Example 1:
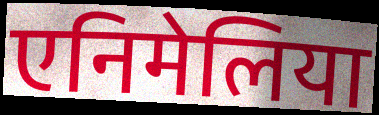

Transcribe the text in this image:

एनिमेलिया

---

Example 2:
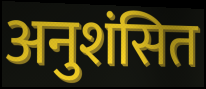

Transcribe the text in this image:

अनुशंसित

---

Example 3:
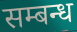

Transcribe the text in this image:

सम्बन्ध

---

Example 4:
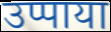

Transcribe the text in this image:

उप्पाया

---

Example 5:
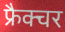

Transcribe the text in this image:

फ्रैक्चर